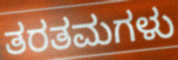
ತರತಮಗಳು